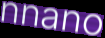
nnano